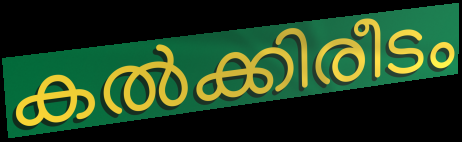
കൽക്കിരീടം